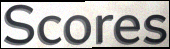
Scores